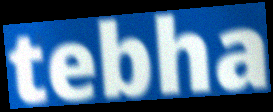
tebha